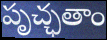
పృచ్ఛతాం